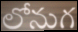
లోనుగ